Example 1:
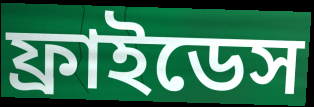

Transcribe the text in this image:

ফ্রাইডেস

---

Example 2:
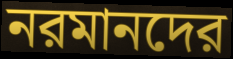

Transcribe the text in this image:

নরমানদের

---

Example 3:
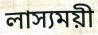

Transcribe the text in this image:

লাস্যময়ী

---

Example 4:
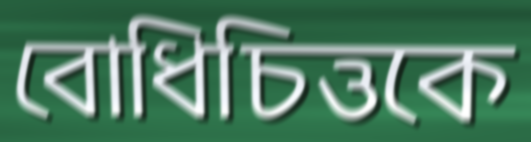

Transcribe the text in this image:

বোধিচিত্তকে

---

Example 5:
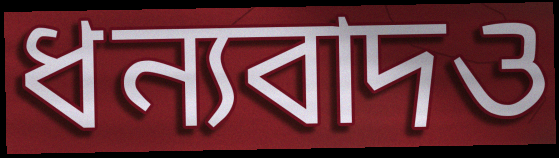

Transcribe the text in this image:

ধন্যবাদও